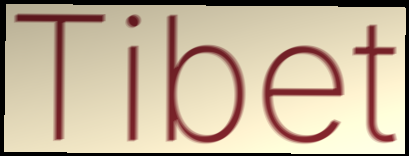
Tibet